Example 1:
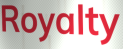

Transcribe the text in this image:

Royalty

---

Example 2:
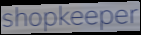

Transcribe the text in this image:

shopkeeper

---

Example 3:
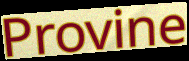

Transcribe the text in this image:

Provine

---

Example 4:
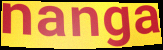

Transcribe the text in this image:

nanga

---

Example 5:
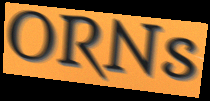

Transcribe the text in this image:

ORNs